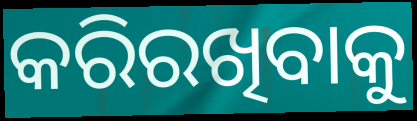
କରିରଖିବାକୁ